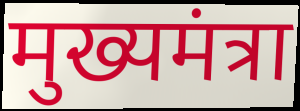
मुख्यमंत्रा